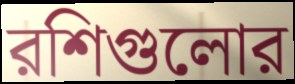
রশিগুলোর